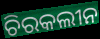
ଚିରକଲୀନ